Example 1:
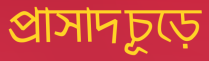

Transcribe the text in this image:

প্রাসাদচূড়ে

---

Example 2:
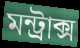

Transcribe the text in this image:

মন্ট্রাক্স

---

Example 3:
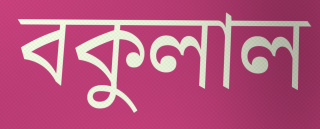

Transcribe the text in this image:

বকুলাল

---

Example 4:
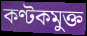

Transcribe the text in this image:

কণ্টকমুক্ত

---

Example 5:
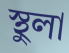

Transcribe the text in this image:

স্থুলা